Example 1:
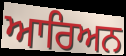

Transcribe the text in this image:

ਆਰਿਅਨ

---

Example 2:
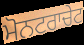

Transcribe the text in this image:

ਮੋਨਟਰਾਚੇਟ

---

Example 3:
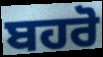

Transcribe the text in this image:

ਬਹਰੋ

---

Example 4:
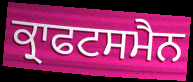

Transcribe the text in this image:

ਕ੍ਰਾਫਟਸਮੈਨ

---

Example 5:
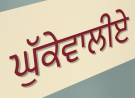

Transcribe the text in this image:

ਘੁੱਕੇਵਾਲੀਏ